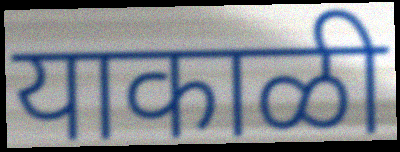
याकाळी